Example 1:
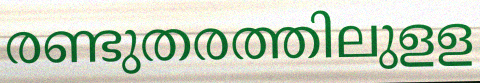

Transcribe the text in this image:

രണ്ടുതരത്തിലുളള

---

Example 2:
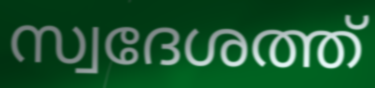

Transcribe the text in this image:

സ്വദേശത്ത്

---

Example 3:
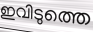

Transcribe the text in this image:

ഇവിടുത്തെ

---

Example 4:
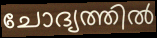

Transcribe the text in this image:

ചോദ്യത്തിൽ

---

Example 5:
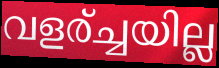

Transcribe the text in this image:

വളര്ച്ചയില്ല